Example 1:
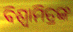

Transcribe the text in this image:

ବିଶ୍ବାମିତ୍ରଙ୍କ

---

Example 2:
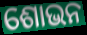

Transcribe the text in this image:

ଶୋଭନ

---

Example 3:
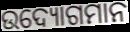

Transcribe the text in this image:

ଉଦ୍ୟୋଗମାନ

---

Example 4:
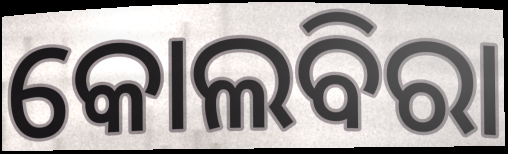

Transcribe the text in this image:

କୋଲବିରା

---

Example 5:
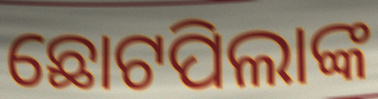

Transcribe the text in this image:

ଛୋଟପିଲାଙ୍କ